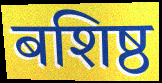
बशिष्ठ